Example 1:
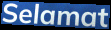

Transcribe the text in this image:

Selamat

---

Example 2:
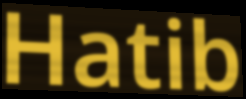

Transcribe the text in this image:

Hatib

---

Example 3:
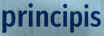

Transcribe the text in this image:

principis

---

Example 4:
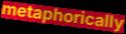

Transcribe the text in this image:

metaphorically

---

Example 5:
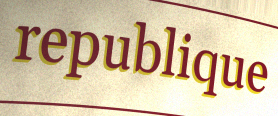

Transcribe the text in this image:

republique